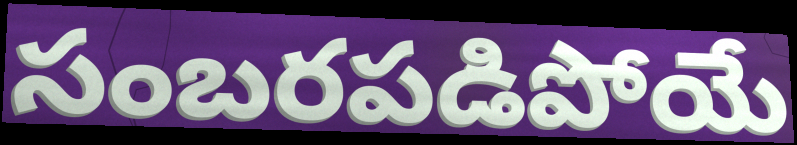
సంబరపడిపోయే